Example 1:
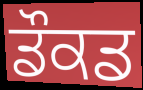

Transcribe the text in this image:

ਡੌਕਡ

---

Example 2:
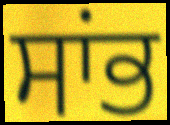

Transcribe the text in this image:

ਸਾਂਭ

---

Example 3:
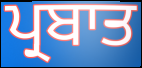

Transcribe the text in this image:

ਪ੍ਰਬਾਤ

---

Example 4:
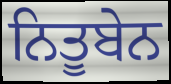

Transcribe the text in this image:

ਨਿਤੂਬੇਨ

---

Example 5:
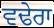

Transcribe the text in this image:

ਵਢੇਰਾ